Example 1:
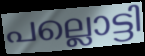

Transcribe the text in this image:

പല്ലൊട്ടി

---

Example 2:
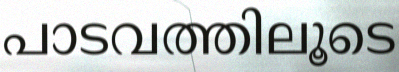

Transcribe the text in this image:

പാടവത്തിലൂടെ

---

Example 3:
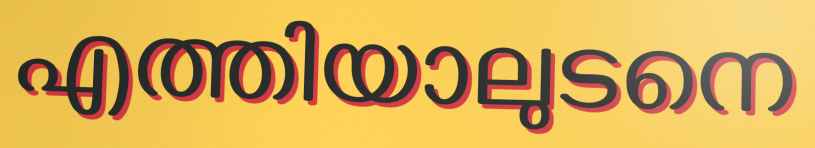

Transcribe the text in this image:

എത്തിയാലുടനെ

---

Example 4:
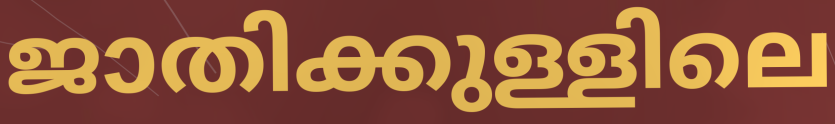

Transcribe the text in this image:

ജാതിക്കുള്ളിലെ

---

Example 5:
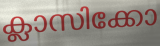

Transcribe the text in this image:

ക്ലാസിക്കോ